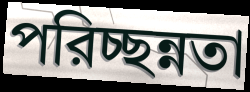
পরিচ্ছন্নতা